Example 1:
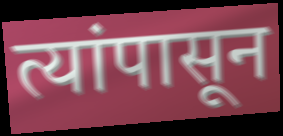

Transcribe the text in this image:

त्यांपासून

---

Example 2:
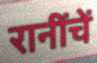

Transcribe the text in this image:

रानींचें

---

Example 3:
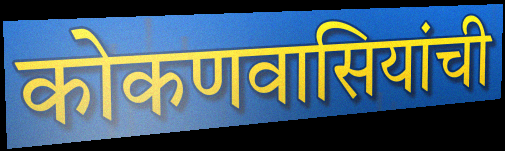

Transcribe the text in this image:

कोकणवासियांची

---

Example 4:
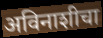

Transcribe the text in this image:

अविनाशीचा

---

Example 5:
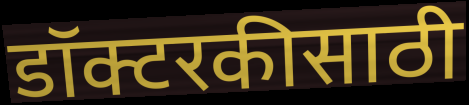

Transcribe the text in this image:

डॉक्टरकीसाठी